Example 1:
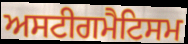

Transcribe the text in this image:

ਅਸਟੀਗਮੈਟਿਸਮ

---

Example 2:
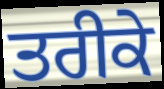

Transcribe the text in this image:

ਤਰੀਕੇ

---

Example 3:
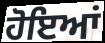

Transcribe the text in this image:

ਹੋਇਆਂ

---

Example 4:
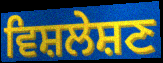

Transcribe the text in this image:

ਵਿਸ਼ਲੇਸ਼ਣ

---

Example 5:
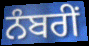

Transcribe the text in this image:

ਨੰਬਰੀਂ